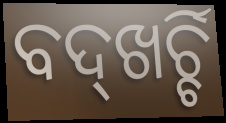
ବଦ୍‌ଖର୍ଚ୍ଚି